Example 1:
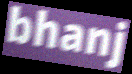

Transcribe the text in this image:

bhanj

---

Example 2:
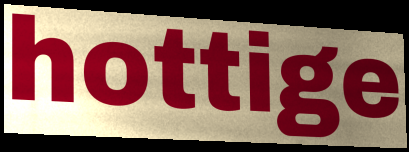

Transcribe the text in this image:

hottige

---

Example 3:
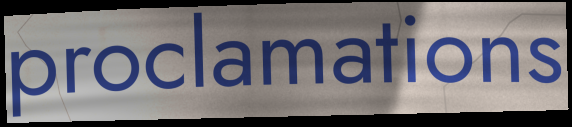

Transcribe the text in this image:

proclamations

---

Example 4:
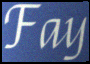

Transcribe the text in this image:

Fay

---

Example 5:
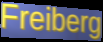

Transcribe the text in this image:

Freiberg